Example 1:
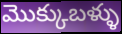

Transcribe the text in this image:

మొక్కుబళ్ళు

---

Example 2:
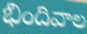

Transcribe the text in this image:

భిందివాల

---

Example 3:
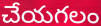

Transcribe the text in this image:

చేయగలం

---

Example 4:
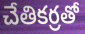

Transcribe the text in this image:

చేతికర్రతో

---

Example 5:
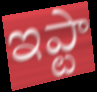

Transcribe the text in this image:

ఇప్టా